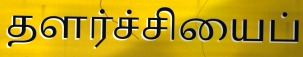
தளர்ச்சியைப்